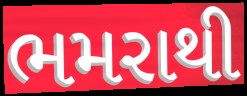
ભમરાથી